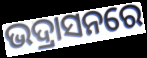
ଭଦ୍ରାସନରେ